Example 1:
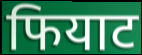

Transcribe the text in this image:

फियाट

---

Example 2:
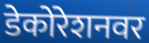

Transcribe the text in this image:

डेकोरेशनवर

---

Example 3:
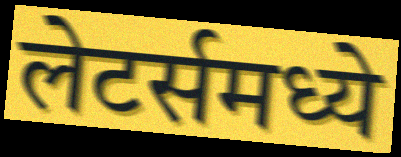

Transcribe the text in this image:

लेटर्समध्ये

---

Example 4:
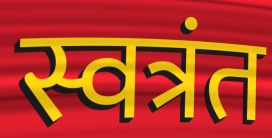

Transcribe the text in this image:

स्वत्रंत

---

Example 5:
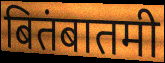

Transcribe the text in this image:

बितंबातमी